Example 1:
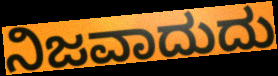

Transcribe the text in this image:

ನಿಜವಾದುದು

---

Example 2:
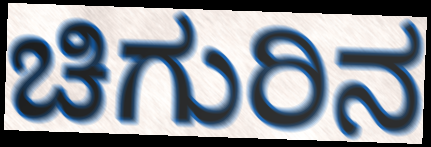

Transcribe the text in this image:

ಚಿಗುರಿನ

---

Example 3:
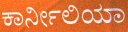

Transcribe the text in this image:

ಕಾರ್ನೀಲಿಯಾ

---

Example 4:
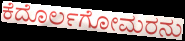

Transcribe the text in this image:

ಕೆದೊರ್ಲಗೋಮರನು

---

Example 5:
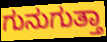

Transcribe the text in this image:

ಗುನುಗುತ್ತಾ